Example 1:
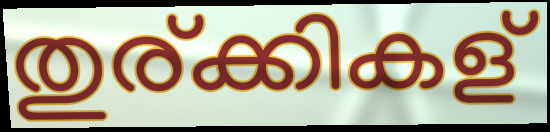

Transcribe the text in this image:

തുര്ക്കികള്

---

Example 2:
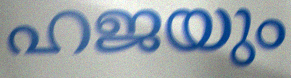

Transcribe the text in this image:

ഹജയും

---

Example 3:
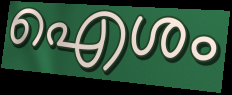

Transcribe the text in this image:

ഐശം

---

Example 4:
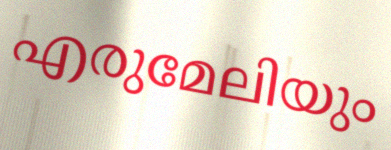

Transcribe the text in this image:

എരുമേലിയും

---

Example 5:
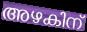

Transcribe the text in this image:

അഴകിന്